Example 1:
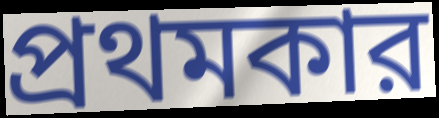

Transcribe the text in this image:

প্রথমকার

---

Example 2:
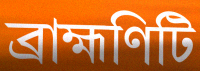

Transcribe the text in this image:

ব্রাহ্মণিটি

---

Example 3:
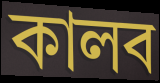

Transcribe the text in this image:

কালব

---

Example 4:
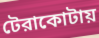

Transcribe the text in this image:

টেরাকোটায়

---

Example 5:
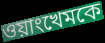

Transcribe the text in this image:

ওয়াংখেমকে